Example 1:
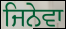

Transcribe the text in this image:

ਜਿਨੇਵਾ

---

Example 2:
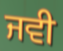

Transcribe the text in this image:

ਜਵੀ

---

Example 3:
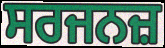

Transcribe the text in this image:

ਸਰਜਨਜ਼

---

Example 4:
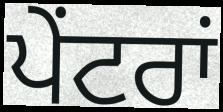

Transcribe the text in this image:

ਪੇਂਟਰਾਂ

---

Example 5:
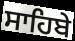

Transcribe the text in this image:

ਸਾਹਿਬੇ